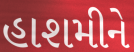
હાશમીને